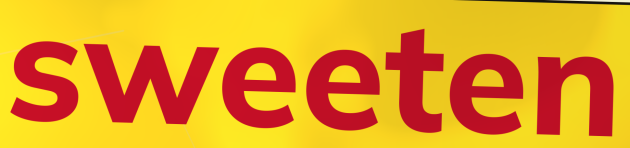
sweeten